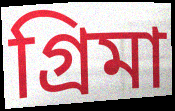
গ্রিমা